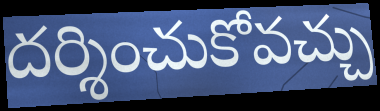
దర్శించుకోవచ్చు